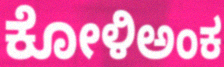
ಕೋಳಿಅಂಕ